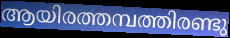
ആയിരത്തമ്പത്തിരണ്ടു